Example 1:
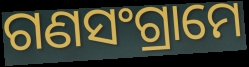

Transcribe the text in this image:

ଗଣସଂଗ୍ରାମେ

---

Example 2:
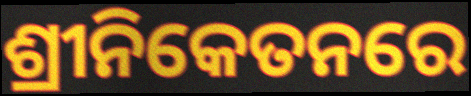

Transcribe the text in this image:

ଶ୍ରୀନିକେତନରେ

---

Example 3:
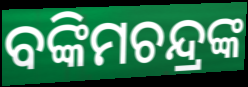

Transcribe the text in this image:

ବଙ୍କିମଚନ୍ଦ୍ରଙ୍କ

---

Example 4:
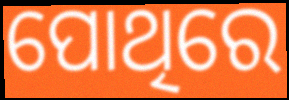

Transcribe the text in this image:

ପୋଥିରେ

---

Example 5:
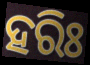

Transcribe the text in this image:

ହରିଃ